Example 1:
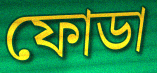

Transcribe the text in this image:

ফোডা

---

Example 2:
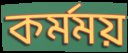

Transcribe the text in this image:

কর্মময়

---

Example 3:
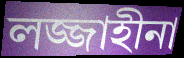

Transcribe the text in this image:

লজ্জাহীনা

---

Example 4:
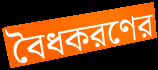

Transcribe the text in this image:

বৈধকরণের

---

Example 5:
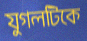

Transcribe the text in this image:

যুগলটিকে